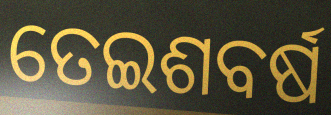
ତେଇଶବର୍ଷ